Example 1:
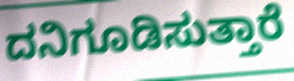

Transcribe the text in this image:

ದನಿಗೂಡಿಸುತ್ತಾರೆ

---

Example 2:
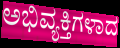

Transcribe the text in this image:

ಅಭಿವ್ಯಕ್ತಿಗಳಾದ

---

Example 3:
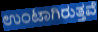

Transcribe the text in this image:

ಉಂಟಾಗಿರುತ್ತವೆ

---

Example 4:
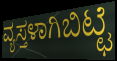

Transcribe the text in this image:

ವ್ಯಸ್ತಳಾಗಿಬಿಟ್ಟೆ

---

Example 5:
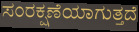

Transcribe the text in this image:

ಸಂರಕ್ಷಣೆಯಾಗುತ್ತದೆ